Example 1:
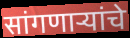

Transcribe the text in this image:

सांगणार्‍यांचे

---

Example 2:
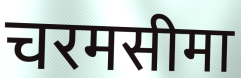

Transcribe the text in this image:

चरमसीमा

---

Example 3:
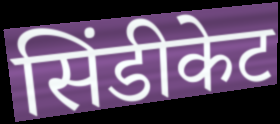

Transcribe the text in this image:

सिंडीकेट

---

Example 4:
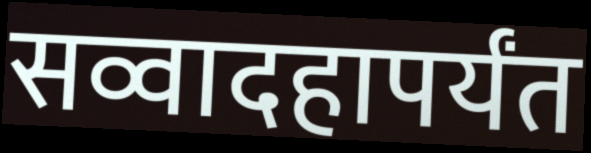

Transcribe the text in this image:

सव्वादहापर्यंत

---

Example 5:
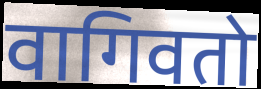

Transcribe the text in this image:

वागिवतो